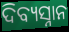
ଦିବ୍ୟସ୍ନାନ